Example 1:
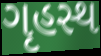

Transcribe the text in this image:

ગૃહસ્થ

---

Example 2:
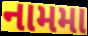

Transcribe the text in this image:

નામમા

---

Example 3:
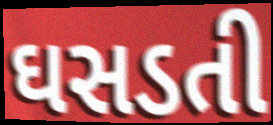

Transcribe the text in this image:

ઘસડતી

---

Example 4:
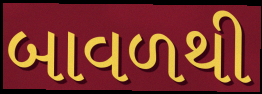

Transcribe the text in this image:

બાવળથી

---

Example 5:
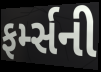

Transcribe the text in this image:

ફર્મ્સની